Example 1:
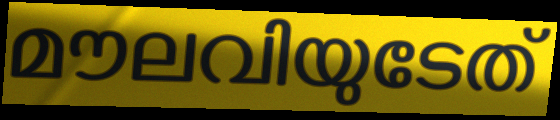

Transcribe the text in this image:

മൗലവിയുടേത്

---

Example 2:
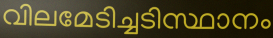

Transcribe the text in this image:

വിലമേടിച്ചടിസ്ഥാനം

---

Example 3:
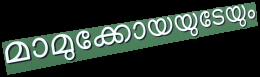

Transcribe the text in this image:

മാമുക്കോയയുടേയും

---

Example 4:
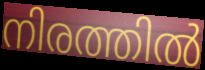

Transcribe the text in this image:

നിരത്തിൽ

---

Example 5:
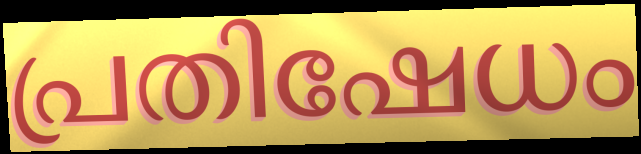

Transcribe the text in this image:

പ്രതിഷേധം